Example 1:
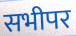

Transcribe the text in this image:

सभीपर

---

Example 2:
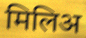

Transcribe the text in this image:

मिलिअ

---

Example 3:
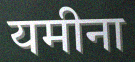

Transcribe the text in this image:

यमीना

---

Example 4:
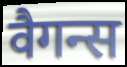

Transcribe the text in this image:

वैगन्स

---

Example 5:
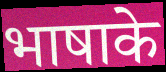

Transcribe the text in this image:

भाषाके